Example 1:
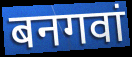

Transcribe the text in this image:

बनगवां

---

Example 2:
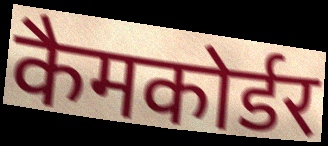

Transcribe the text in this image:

कैमकोर्डर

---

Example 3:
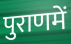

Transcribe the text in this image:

पुराणमें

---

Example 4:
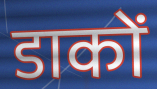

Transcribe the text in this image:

डाकों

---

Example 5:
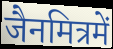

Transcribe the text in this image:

जैनमित्रमें